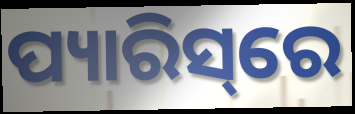
ପ୍ୟାରିସ୍‌ରେ